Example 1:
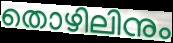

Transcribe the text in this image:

തൊഴിലിനും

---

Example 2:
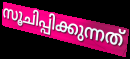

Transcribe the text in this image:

സൂചിപ്പിക്കുന്നത്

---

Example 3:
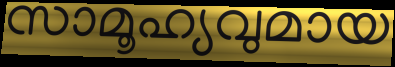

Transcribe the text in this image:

സാമൂഹ്യവുമായ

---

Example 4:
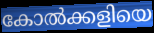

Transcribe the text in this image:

കോൽക്കളിയെ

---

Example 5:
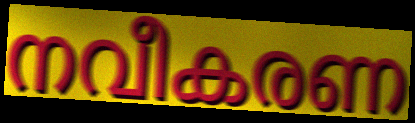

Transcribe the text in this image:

നവീകരണ